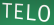
TELO